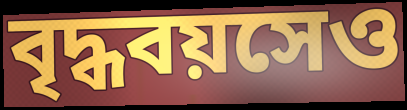
বৃদ্ধবয়সেও